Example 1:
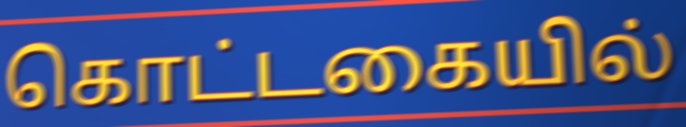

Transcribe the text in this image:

கொட்டகையில்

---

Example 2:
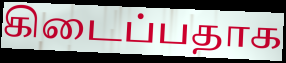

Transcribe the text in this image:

கிடைப்பதாக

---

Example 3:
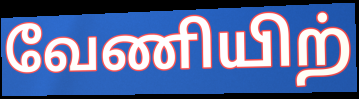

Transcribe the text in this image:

வேணியிற்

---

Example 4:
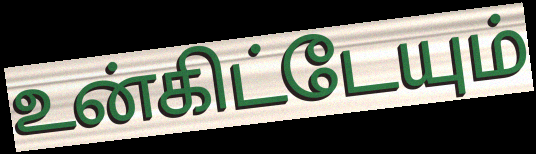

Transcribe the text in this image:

உன்கிட்டேயும்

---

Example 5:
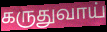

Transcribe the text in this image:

கருதுவாய்